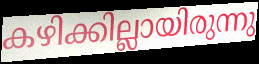
കഴിക്കില്ലായിരുന്നു